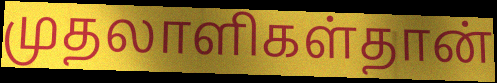
முதலாளிகள்தான்